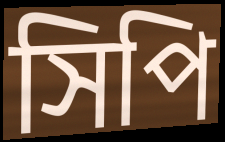
সিপি